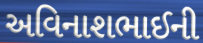
અવિનાશભાઈની